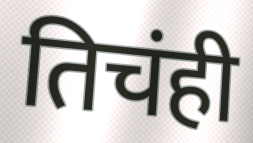
तिचंही